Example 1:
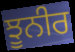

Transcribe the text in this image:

ਝੂਨੀਰ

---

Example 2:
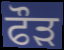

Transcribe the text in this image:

ਫੌਡ਼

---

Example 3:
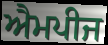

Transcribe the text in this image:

ਐਮਪੀਜ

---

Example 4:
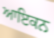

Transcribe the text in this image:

ਆਇਕਨ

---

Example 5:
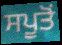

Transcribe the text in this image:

ਸਪੂਤੋਂ